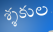
శ్శకుల